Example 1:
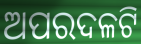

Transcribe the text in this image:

ଅପରଦଳଟି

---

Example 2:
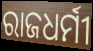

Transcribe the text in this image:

ରାଜଧର୍ମୀ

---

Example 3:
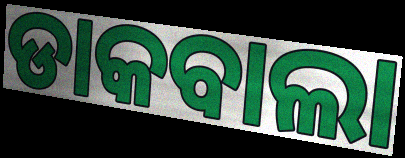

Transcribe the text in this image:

ଡାକବାଲା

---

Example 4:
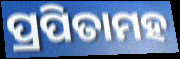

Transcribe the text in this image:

ପ୍ରପିତାମହ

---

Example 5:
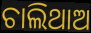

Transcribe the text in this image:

ଚାଲିଥାଅ